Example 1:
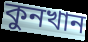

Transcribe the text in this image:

কুনখান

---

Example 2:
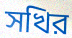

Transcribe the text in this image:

সখির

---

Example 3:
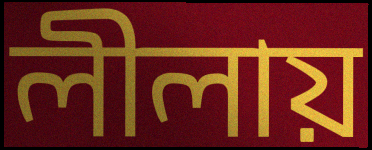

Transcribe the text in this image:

লীলায়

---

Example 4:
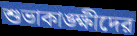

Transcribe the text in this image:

শুভাকাঙ্ক্ষীদের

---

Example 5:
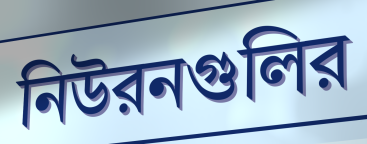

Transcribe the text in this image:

নিউরনগুলির